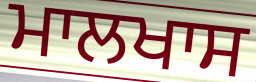
ਮਾਲਖਾਸ